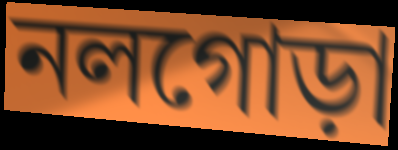
নলগোড়া